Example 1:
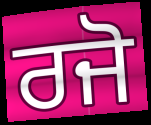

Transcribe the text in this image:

ਰਜੋ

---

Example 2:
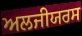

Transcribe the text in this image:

ਅਲਜੀਯਰਸ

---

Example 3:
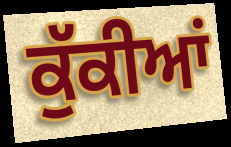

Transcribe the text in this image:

ਕੁੱਕੀਆਂ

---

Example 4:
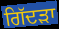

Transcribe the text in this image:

ਗਿੱਦੜਾ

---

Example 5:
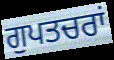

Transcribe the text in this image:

ਗੁਪਤਚਰਾਂ